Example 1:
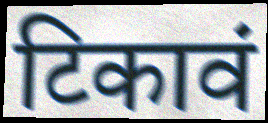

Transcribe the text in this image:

टिकावं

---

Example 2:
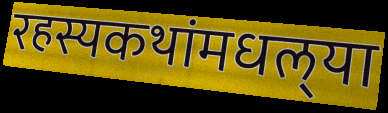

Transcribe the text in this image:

रहस्यकथांमधल्या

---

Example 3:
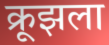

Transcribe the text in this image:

क्रूझला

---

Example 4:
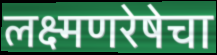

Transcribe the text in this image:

लक्ष्मणरेषेचा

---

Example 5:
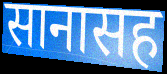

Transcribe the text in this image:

सानासह